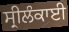
ਸ੍ਰੀਲੰਕਾਈ